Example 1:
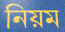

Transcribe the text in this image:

নিয়ম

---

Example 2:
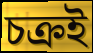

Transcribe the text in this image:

চক্ৰই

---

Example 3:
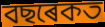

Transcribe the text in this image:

বছৰেকত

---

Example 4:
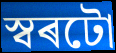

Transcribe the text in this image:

স্বৰটো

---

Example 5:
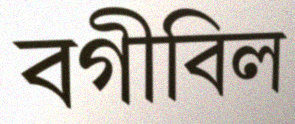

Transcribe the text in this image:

বগীবিল